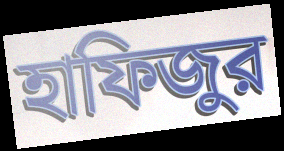
হাফিজুর